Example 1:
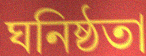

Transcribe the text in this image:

ঘনিষ্ঠতা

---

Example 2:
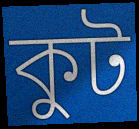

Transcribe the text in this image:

কুট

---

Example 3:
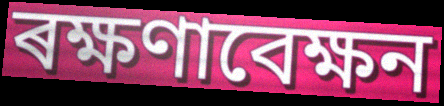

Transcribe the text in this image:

ৰক্ষণাবেক্ষন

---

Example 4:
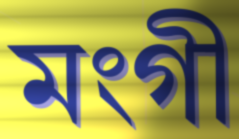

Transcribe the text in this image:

মংগী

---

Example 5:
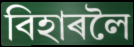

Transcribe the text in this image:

বিহাৰলৈ